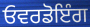
ਓਵਰਡੋਇੰਗ